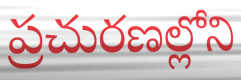
ప్రచురణల్లోని